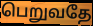
பெறுவதே